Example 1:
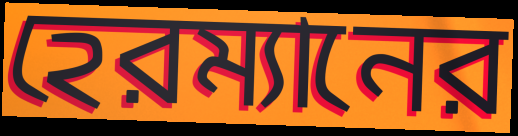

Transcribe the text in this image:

হেরম্যানের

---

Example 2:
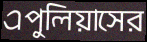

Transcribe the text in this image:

এপুলিয়াসের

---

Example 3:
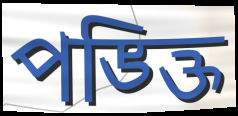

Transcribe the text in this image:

পঙ্ক্তি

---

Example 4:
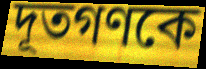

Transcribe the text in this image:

দূতগণকে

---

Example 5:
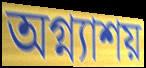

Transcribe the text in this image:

অগ্ন্যাশয়